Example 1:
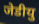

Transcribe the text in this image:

जेडीयु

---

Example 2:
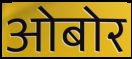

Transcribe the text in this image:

ओबोर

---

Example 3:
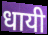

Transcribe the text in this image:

धायी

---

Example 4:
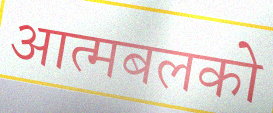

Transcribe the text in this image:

आत्मबलको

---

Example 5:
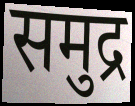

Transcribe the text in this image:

समुद्र